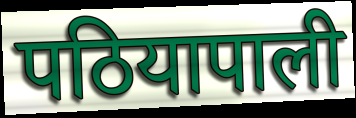
पठियापाली